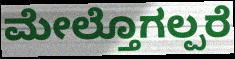
ಮೇಲ್ತೊಗಲ್ಪರೆ